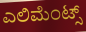
ಎಲಿಮೆಂಟ್ಸ್